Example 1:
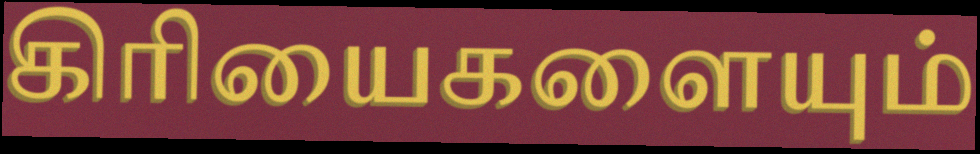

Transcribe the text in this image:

கிரியைகளையும்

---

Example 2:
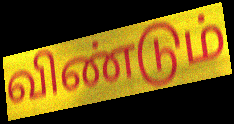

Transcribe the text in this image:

விண்டும்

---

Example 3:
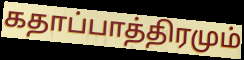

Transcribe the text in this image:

கதாப்பாத்திரமும்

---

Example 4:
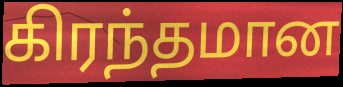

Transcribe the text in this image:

கிரந்தமான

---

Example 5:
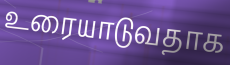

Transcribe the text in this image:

உரையாடுவதாக